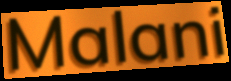
Malani